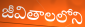
జీవితాలలోని